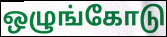
ஒழுங்கோடு